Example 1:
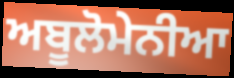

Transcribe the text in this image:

ਅਬੂਲੋਮੇਨੀਆ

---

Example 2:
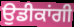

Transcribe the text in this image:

ਉਡੀਕਾਂਗੀ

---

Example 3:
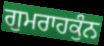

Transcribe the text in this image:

ਗੁਮਰਾਹਕੁੰਨ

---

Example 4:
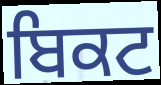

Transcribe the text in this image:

ਬਿਕਟ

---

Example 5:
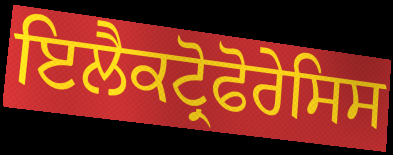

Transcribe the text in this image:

ਇਲੈਕਟ੍ਰੋਫੋਰੇਸਿਸ